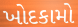
ખોદકામો